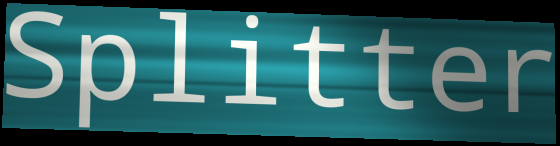
Splitter